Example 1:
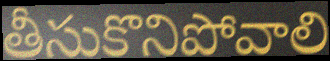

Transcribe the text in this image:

తీసుకొనిపోవాలి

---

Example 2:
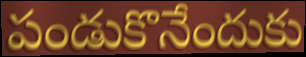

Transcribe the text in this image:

పండుకొనేందుకు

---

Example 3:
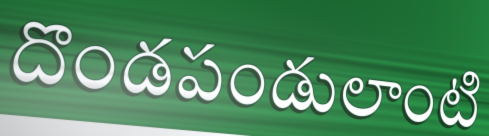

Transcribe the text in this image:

దొండపండులాంటి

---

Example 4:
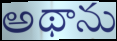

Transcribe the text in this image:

అథాను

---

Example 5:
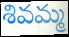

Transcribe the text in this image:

శివమ్మ